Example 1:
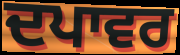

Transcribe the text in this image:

ਦਪਾਵਰ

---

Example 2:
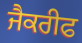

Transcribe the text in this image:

ਜੈਕਰੀਫ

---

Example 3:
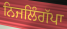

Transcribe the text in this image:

ਨਿਜਲਿੰਗੱਪਾ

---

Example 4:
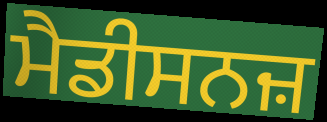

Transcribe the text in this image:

ਮੈਡੀਸਨਜ਼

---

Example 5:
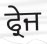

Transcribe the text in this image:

ਫ੍ਰੇਜ